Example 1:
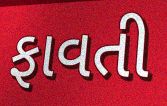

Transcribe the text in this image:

ફાવતી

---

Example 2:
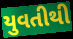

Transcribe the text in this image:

યુવતીથી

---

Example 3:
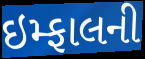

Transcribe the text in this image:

ઇમ્ફાલની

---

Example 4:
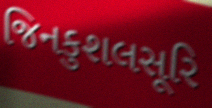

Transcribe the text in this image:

જિનકુશલસૂરિ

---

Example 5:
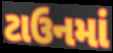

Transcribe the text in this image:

ટાઉનમાં